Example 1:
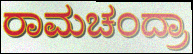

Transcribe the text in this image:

ರಾಮಚಂದ್ರಾ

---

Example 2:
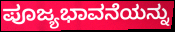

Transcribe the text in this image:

ಪೂಜ್ಯಭಾವನೆಯನ್ನು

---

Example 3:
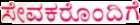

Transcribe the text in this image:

ಸೇವಕರೊಂದಿಗೆ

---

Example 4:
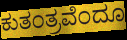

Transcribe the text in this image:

ಕುತಂತ್ರವೆಂದೂ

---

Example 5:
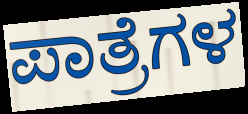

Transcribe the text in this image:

ಪಾತ್ರೆಗಳ